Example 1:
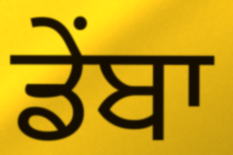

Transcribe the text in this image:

ਡੇਂਬਾ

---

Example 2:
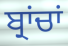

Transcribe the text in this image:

ਬ੍ਰਾਂਚਾਂ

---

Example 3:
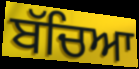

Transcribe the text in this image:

ਬੱਚਿਆ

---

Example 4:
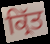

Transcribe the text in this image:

ਕ੍ਰਿੱਤ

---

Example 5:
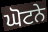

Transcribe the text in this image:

ਘੋਟਨੇ